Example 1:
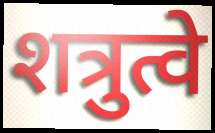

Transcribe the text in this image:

शत्रुत्वे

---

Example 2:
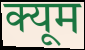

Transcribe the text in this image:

क्यूम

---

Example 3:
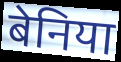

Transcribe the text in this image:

बेनिया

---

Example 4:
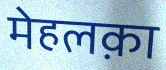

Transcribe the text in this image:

मेहलक़ा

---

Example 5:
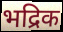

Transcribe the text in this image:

भद्रिक